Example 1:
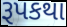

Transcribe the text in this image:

રૂપકથા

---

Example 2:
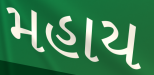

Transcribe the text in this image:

મહાય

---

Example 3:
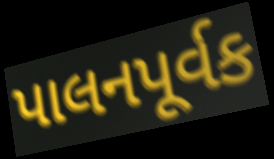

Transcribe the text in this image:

પાલનપૂર્વક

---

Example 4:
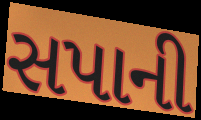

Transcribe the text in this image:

સપાની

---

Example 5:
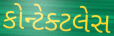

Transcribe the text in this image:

કોન્ટેક્ટલેસ